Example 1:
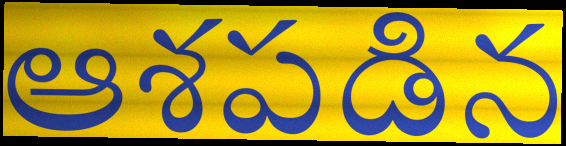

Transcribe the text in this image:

ఆశపడిన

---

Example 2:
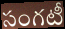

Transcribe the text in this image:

సంగటీ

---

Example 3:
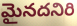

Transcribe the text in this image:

మైనదనిరి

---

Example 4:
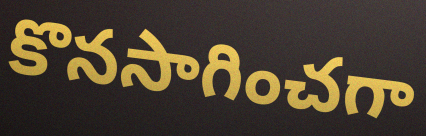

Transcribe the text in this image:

కొనసాగించగా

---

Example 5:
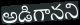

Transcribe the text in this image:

అడిగానని